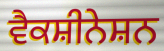
ਵੈਕਸ਼ੀਨੇਸ਼ਨ